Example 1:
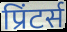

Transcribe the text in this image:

प्रिंटर्स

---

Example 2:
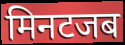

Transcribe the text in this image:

मिनटजब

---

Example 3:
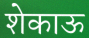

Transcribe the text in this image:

शेकाऊ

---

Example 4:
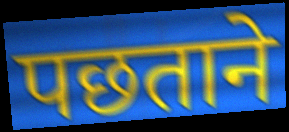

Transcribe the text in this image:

पछताने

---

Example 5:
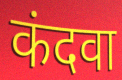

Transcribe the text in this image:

कंदवा